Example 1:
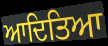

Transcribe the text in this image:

ਆਦਿਤਿਆ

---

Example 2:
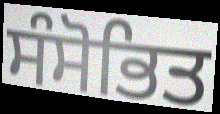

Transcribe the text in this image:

ਸੰਸੋਭਿਤ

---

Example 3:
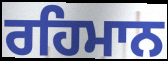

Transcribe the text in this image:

ਰਹਿਮਾਨ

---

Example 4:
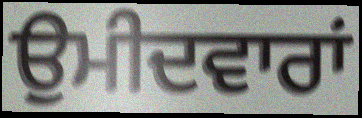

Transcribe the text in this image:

ਉਮੀਦਵਾਰਾਂ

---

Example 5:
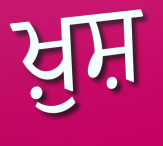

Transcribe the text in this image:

ਖ਼ੁਸ਼